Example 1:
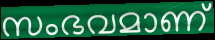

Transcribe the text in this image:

സംഭവമാണ്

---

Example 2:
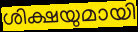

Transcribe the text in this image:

ശിക്ഷയുമായി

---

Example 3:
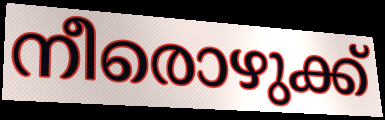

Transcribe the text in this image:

നീരൊഴുക്ക്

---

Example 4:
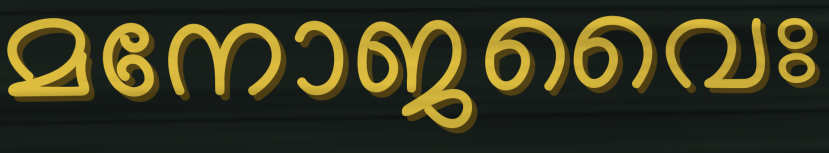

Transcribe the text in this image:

മനോജവൈഃ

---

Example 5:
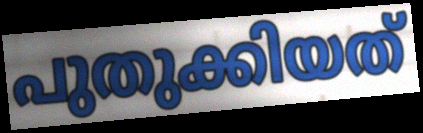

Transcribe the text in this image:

പുതുക്കിയത്